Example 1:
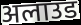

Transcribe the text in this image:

अलाउड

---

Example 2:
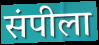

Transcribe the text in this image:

संपीला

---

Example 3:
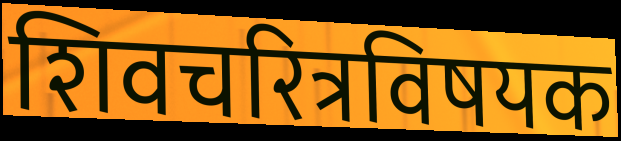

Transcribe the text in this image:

शिवचरित्रविषयक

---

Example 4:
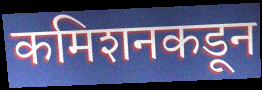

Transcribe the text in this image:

कमिशनकडून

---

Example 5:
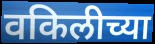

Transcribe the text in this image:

वकिलीच्या